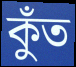
কুঁত